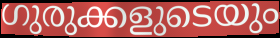
ഗുരുക്കളുടെയും